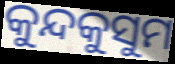
କୁନ୍ଦକୁସୁମ